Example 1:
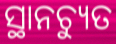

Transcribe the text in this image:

ସ୍ଥାନଚ୍ୟୁତ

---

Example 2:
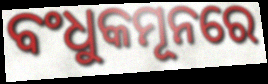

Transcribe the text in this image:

ବଂଧୁକମୂନରେ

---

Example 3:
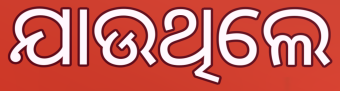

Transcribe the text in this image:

ଯାଉଥିଲେ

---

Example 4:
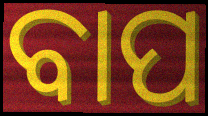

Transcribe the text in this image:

ବାପ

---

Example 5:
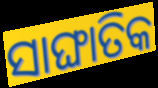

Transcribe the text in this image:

ସାଙ୍ଘାତିକ